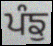
ਪੰਙੁ